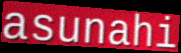
asunahi